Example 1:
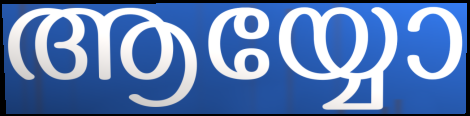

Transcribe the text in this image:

ആയ്യോ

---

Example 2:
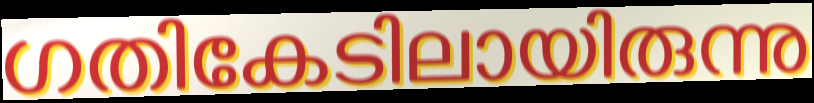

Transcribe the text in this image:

ഗതികേടിലായിരുന്നു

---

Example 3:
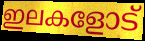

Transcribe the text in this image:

ഇലകളോട്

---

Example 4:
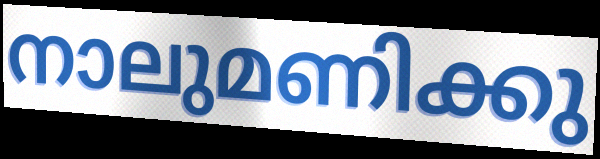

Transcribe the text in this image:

നാലുമണിക്കു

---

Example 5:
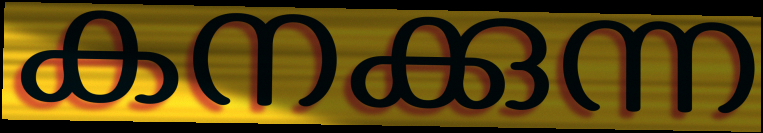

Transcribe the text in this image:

കനക്കുന്ന